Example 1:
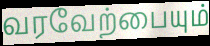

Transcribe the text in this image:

வரவேற்பையும்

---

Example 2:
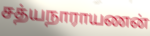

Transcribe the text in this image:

சத்யநாராயணன்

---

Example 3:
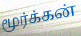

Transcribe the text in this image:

மூர்க்கன்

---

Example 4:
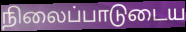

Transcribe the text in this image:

நிலைப்பாடுடைய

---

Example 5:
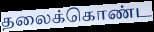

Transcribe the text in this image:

தலைக்கொண்ட